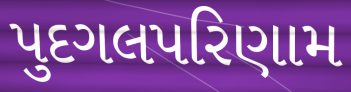
પુદગલપરિણામ